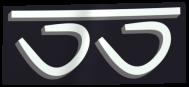
তত